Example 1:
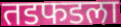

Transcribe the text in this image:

तडफडला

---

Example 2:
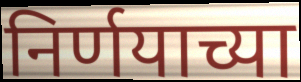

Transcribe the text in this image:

निर्णयाच्या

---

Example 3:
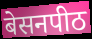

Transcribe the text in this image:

बेसनपीठ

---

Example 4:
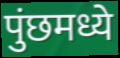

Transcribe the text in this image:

पुंछमध्ये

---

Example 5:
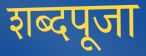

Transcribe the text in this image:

शब्दपूजा